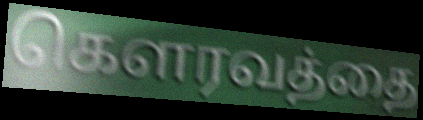
கௌரவத்தை